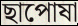
ছাপোষা